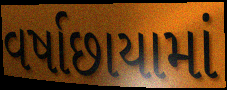
વર્ષાછાયામાં